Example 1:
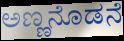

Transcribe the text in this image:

ಅಣ್ಣನೊಡನೆ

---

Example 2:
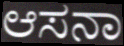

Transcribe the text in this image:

ಆಸನಾ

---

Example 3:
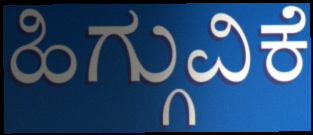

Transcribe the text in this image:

ಹಿಗ್ಗುವಿಕೆ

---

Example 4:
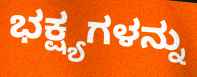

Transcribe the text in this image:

ಭಕ್ಷ್ಯಗಳನ್ನು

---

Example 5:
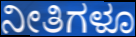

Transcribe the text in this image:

ನೀತಿಗಳೂ